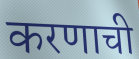
करणाची